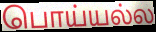
பொய்யல்ல